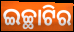
ଇଚ୍ଛାଟିର